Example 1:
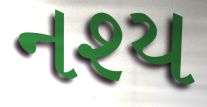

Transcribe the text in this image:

નશ્ય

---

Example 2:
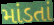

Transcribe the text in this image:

માંડતાં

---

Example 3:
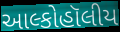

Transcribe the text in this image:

આલ્કોહૉલીય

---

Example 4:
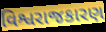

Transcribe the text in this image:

વિશ્વરાજકારણ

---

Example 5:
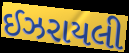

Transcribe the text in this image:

ઈઝરાયલી